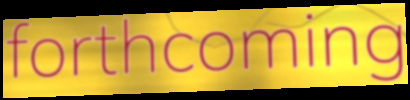
forthcoming